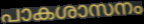
പാകശാസനം